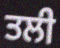
ਤਲੀ